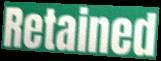
Retained